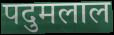
पदुमलाल